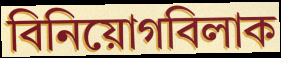
বিনিয়োগবিলাক